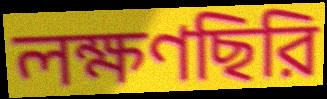
লক্ষণছিরি